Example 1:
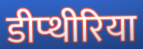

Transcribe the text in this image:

डीप्थीरिया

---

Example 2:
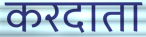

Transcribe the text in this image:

करदाता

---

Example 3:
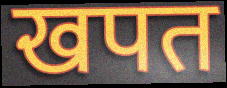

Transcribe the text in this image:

खपत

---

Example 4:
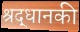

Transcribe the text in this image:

श्रद्धानकी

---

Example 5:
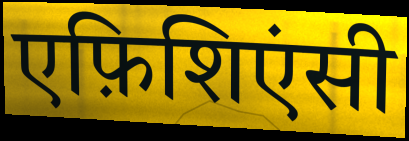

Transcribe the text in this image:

एफ़िशिएंसी